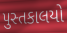
પુસ્તકાલયો